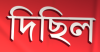
দিছিল